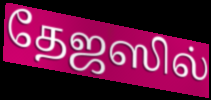
தேஜஸில்